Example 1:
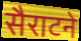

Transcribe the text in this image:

सैराटने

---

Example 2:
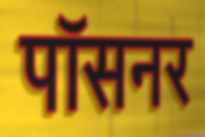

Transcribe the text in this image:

पॉसनर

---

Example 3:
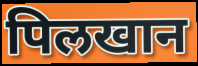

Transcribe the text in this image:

पिलखान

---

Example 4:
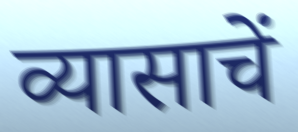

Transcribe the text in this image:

व्यासाचें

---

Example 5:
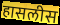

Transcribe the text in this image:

हासलीस